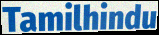
Tamilhindu